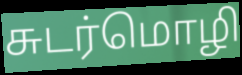
சுடர்மொழி